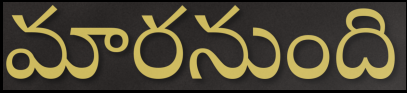
మారనుంది